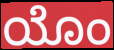
ಯೊಂ